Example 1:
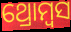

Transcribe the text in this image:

ଥ୍ରୋମ୍ବସ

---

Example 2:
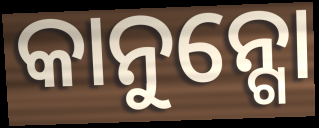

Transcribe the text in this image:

କାନୁନ୍ଗୋ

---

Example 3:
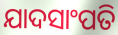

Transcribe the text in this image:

ଯାଦସାଂପତି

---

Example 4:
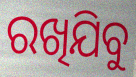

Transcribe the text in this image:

ରଖିଯିବୁ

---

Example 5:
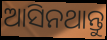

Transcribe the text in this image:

ଆସିନଥାନ୍ତୁ